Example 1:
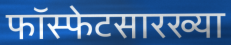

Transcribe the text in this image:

फॉस्फेटसारख्या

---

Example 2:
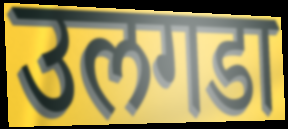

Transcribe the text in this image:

उलगडा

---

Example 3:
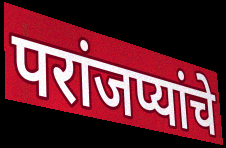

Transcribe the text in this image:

परांजप्यांचे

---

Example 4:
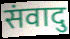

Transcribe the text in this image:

संवादु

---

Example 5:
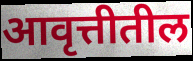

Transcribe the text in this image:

आवृत्तीतील